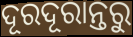
ଦୂରଦୂରାନ୍ତରୁ